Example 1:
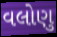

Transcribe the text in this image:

વલોણુ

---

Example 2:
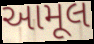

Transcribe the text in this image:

આમૂલ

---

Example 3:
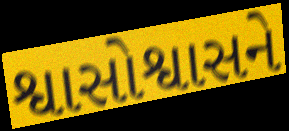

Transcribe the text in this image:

શ્વાસોશ્વાસને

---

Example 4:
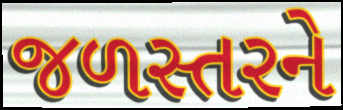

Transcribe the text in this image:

જળસ્તરને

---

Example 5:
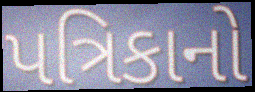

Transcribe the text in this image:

પત્રિકાનો